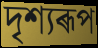
দৃশ্যৰূপ